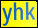
yhk